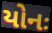
યોનઃ